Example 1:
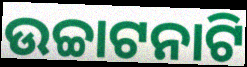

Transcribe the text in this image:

ଉଚ୍ଚାଟନାଟି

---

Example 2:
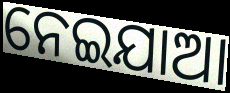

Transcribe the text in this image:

ନେଇଯାଆ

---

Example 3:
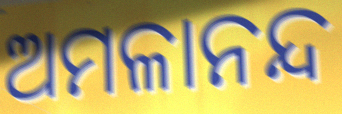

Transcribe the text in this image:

ଅମଳାନନ୍ଦ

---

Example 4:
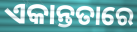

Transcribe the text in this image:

ଏକାନ୍ତତାରେ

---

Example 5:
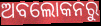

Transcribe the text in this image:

ଅବଲୋକନରୁ